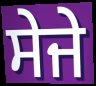
ਸੇਜੇ